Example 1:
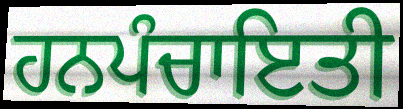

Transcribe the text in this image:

ਹਨਪੰਚਾਇਤੀ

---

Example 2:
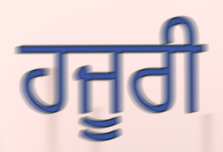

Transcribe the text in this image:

ਹਜੂਰੀ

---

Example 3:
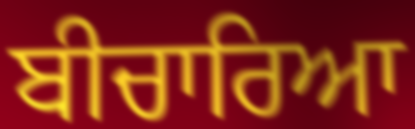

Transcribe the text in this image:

ਬੀਚਾਰਿਆ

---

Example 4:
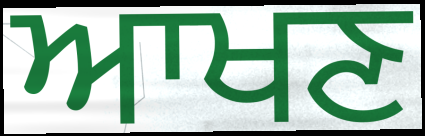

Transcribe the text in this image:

ਆਖਣ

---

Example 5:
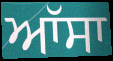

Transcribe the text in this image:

ਆੱਸਾ